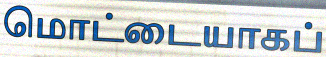
மொட்டையாகப்